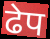
ढेप